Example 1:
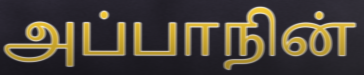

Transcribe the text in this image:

அப்பாநின்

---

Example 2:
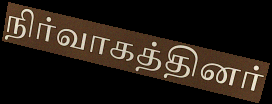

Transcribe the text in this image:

நிர்வாகத்தினர்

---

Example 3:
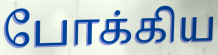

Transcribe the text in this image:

போக்கிய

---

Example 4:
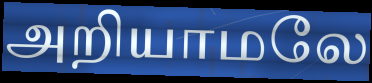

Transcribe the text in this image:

அறியாமலே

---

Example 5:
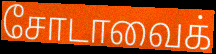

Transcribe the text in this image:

சோடாவைக்